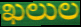
ఖలుల